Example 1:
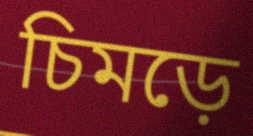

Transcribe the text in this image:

চিমড়ে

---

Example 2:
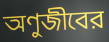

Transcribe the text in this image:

অণুজীবের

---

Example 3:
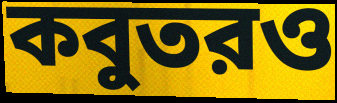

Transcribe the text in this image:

কবুতরও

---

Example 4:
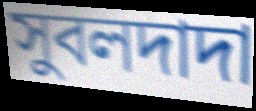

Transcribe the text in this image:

সুবলদাদা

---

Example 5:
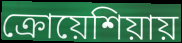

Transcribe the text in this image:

ক্রোয়েশিয়ায়